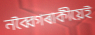
নব্বৈগৰাকীয়েই